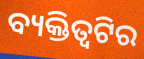
ବ୍ୟକ୍ତିତ୍ୱଟିର